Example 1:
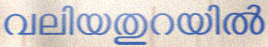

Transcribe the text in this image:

വലിയതുറയിൽ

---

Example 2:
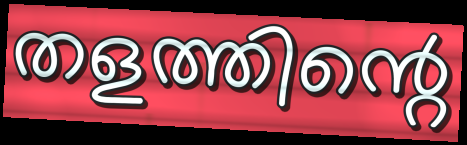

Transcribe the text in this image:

തളത്തിന്റെ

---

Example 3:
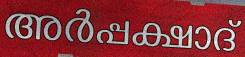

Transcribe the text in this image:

അർപ്പക്ഷാദ്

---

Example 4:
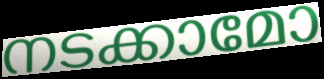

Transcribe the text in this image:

നടക്കാമോ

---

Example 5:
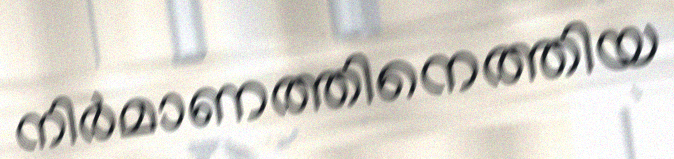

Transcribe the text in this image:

നിർമാണത്തിനെത്തിയ